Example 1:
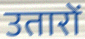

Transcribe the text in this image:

उतारों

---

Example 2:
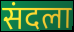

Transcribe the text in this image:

संदला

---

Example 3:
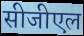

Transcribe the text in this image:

सीजीएल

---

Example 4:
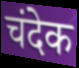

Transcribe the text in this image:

चंदेक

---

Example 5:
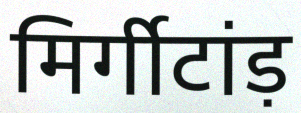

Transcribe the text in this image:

मिर्गीटांड़